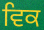
ਵਿਕ